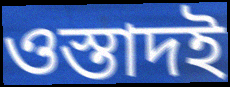
ওস্তাদই